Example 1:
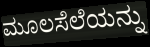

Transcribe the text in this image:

ಮೂಲಸೆಲೆಯನ್ನು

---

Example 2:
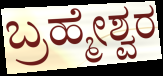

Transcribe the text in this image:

ಬ್ರಹ್ಮೇಶ್ವರ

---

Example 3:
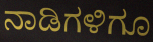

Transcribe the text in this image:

ನಾಡಿಗಳಿಗೂ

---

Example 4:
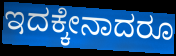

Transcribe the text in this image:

ಇದಕ್ಕೇನಾದರೂ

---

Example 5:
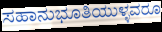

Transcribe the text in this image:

ಸಹಾನುಭೂತಿಯುಳ್ಳವರೂ